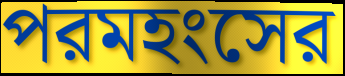
পরমহংসের